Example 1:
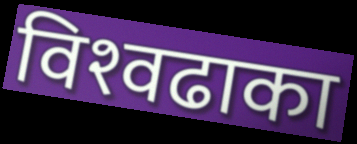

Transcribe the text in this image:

विश्वढाका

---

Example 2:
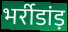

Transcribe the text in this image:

भर्रीडांड़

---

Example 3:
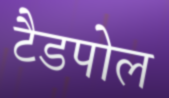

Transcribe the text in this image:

टैडपोल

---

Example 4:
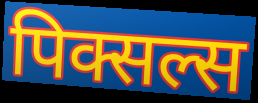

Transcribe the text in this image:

पिक्सल्स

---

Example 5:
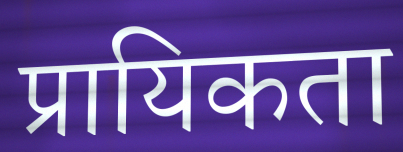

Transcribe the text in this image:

प्रायिकता